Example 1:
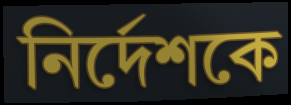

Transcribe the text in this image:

নির্দেশকে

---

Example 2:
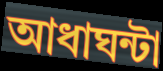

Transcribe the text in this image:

আধাঘন্টা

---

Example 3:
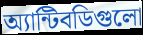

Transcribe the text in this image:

অ্যান্টিবডিগুলো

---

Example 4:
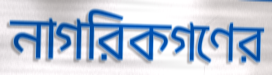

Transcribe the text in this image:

নাগরিকগণের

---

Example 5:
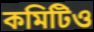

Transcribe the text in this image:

কমিটিও